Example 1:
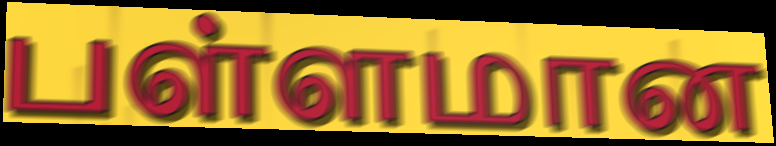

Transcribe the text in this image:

பள்ளமான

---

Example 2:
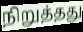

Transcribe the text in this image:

நிறுத்தது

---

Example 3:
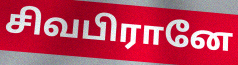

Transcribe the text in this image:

சிவபிரானே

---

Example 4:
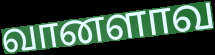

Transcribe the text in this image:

வானளாவ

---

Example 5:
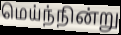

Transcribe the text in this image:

மெய்ந்நின்று